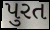
પુરત